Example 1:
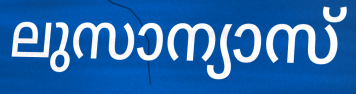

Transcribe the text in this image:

ലുസാന്യാസ്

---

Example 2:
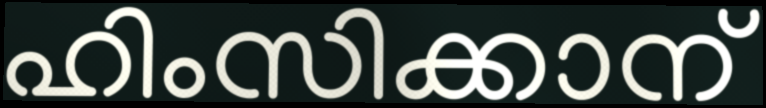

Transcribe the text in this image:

ഹിംസിക്കാന്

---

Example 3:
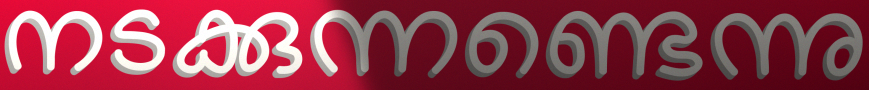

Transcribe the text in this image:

നടക്കുന്നണ്ടെന്നു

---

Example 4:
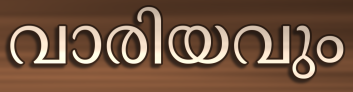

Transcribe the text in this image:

വാരിയവും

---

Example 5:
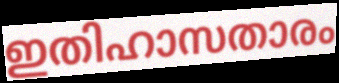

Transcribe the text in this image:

ഇതിഹാസതാരം